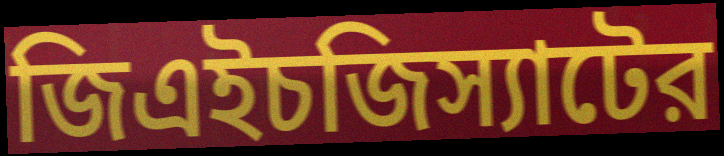
জিএইচজিস্যাটের